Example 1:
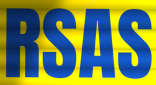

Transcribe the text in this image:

RSAS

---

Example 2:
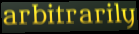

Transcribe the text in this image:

arbitrarily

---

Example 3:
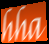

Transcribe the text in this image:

hha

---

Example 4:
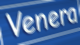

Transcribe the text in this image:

Venera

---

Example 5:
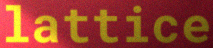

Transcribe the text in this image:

lattice